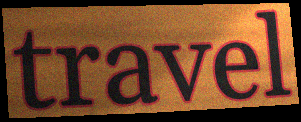
travel